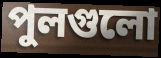
পুলগুলো